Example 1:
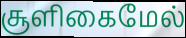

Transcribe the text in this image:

சூளிகைமேல்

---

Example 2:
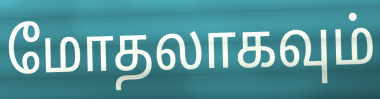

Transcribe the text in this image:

மோதலாகவும்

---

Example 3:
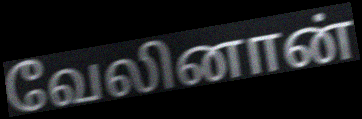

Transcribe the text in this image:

வேலினான்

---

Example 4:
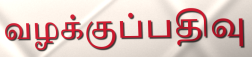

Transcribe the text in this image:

வழக்குப்பதிவு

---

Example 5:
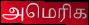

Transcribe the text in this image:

அமெரிக